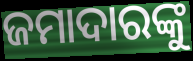
ଜମାଦାରଙ୍କୁ